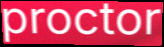
proctor